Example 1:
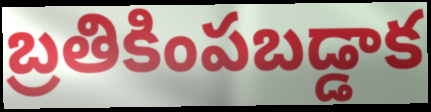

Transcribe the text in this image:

బ్రతికింపబడ్డాక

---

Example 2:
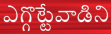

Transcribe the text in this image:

ఎగ్గొట్టేవాడిని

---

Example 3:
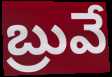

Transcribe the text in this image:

బ్రువే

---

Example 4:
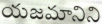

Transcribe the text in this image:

యజమానిని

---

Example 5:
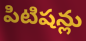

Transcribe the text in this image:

పిటిషన్లు